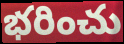
భరించు